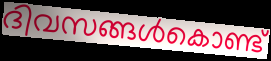
ദിവസങ്ങൾകൊണ്ട്